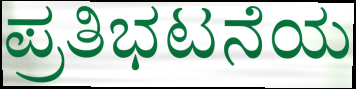
ಪ್ರತಿಭಟನೆಯ